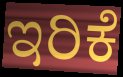
ಇರಿಕೆ